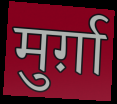
मुर्ग़ा